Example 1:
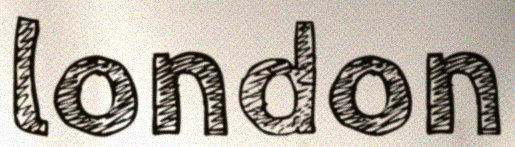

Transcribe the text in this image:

london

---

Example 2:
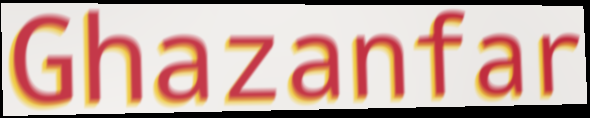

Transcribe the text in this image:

Ghazanfar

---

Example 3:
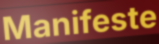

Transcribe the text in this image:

Manifeste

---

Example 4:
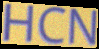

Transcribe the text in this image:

HCN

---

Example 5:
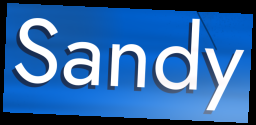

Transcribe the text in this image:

Sandy